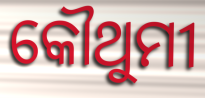
କୌଥୁମୀ